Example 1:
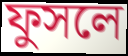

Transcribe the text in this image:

ফুসলে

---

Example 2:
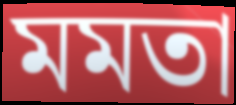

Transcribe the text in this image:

মমতা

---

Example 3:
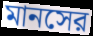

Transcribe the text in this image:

মানসের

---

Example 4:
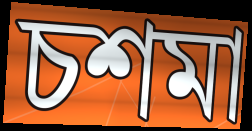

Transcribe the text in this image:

চশমা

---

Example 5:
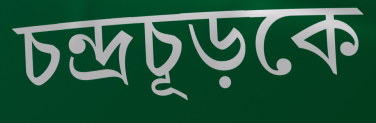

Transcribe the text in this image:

চন্দ্রচূড়কে